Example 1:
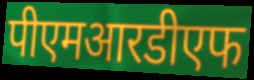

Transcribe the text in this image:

पीएमआरडीएफ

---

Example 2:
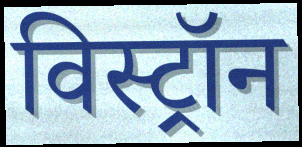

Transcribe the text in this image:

विस्ट्रॉन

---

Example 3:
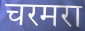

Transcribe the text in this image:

चरमरा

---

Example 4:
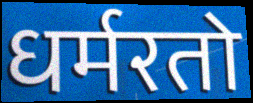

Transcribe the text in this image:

धर्मरतो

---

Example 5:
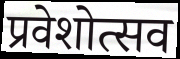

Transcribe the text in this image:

प्रवेशोत्सव